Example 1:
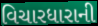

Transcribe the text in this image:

વિચારધારાની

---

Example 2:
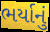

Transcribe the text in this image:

ભર્યાનું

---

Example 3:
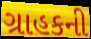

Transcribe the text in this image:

ગ્રાહકની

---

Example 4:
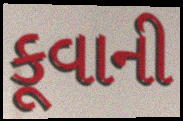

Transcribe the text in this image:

કૂવાની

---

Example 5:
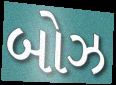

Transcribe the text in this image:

બોઝ